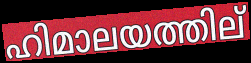
ഹിമാലയത്തില്